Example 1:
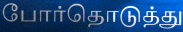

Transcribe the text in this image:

போர்தொடுத்து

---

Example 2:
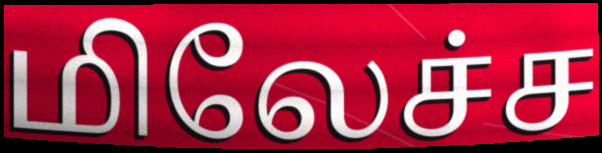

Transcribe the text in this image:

மிலேச்ச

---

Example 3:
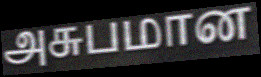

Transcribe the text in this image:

அசுபமான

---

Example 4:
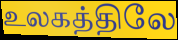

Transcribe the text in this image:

உலகத்திலே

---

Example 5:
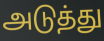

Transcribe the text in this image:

அடுத்து